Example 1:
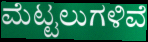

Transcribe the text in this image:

ಮೆಟ್ಟಲುಗಳಿವೆ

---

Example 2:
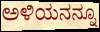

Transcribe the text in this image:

ಅಳಿಯನನ್ನೂ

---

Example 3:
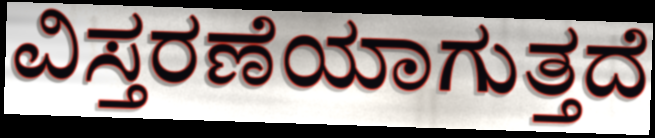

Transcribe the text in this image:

ವಿಸ್ತರಣೆಯಾಗುತ್ತದೆ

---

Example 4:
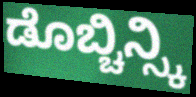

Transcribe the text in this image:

ಡೊಬ್ಚಿನ್ಸ್ಕಿ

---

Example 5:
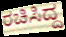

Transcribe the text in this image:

ರಚಿಸಿದ್ದ